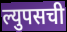
ल्युपसची